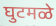
घुटमळे